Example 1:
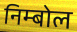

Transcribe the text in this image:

निम्बोल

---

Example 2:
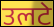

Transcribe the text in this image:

उलटे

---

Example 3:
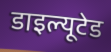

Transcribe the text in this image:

डाइल्यूटेड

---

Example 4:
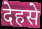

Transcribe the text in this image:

देहसे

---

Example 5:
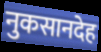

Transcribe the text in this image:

नुकसानदेह